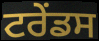
ਟਰੇਂਡਸ